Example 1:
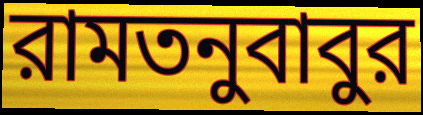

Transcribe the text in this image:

রামতনুবাবুর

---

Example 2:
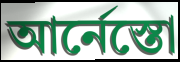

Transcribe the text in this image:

আর্নেস্তো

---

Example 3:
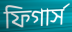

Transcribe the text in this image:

ফিগার্স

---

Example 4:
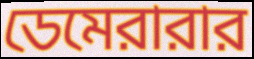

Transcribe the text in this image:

ডেমেরারার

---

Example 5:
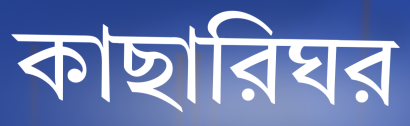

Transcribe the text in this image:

কাছারিঘর